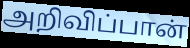
அறிவிப்பான்